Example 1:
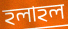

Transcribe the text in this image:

হলাহল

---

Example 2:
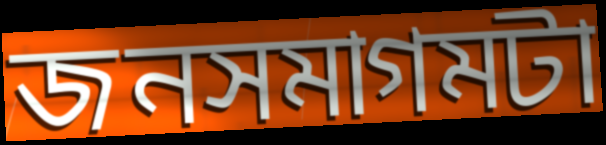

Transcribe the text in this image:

জনসমাগমটা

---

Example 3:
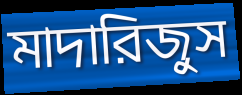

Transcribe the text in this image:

মাদারিজুস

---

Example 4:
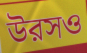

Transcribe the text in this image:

উরসও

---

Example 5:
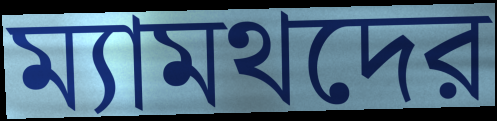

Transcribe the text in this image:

ম্যামথদের